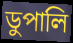
ডুপালি